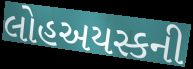
લોહઅયસ્કની